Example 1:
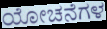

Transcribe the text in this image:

ಯೋಚನೆಗಳ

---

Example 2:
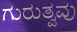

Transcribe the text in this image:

ಗುರುತ್ವವು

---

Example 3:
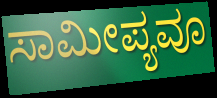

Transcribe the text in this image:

ಸಾಮೀಪ್ಯವೂ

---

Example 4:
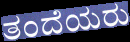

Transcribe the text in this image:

ತಂದೆಯರು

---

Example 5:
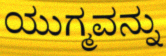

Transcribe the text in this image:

ಯುಗ್ಮವನ್ನು